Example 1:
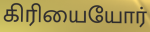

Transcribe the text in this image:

கிரியையோர்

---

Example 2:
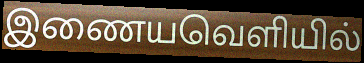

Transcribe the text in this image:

இணையவெளியில்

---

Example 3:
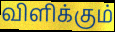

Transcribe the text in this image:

விளிக்கும்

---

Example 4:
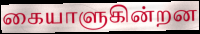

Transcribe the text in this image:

கையாளுகின்றன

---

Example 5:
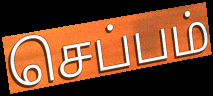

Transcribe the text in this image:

செப்பம்